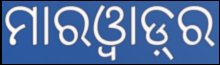
ମାରଓ୍ୱାଡ଼୍‌ର